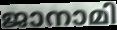
ജാനാമി